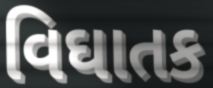
વિઘાતક